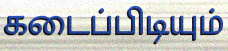
கடைப்பிடியும்